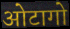
ओटागो